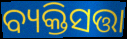
ବ୍ୟକ୍ତିସତ୍ତା